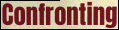
Confronting